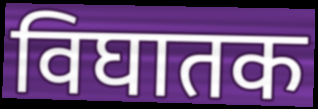
विघातक